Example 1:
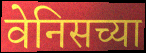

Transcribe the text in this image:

वेनिसच्या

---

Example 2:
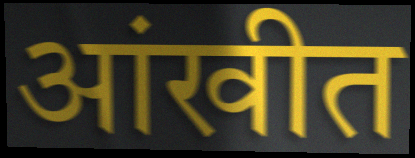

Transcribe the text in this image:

आंखीत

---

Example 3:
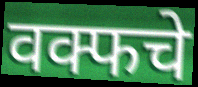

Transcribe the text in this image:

वक्फचे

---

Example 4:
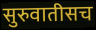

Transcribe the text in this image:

सुरुवातीसच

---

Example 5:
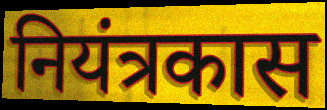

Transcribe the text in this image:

नियंत्रकास